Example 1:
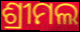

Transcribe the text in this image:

ଶ୍ରୀମଲ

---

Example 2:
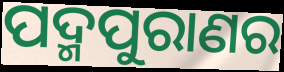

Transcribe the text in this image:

ପଦ୍ମପୁରାଣର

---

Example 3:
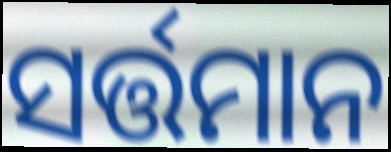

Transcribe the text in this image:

ସର୍ତ୍ତମାନ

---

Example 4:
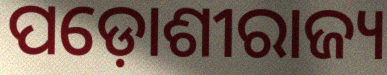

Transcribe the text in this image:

ପଡ଼ୋଶୀରାଜ୍ୟ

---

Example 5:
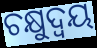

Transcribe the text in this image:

ଚକ୍ଷୁଦ୍ଵୟ